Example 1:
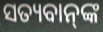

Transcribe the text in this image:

ସତ୍ୟବାନ୍‌ଙ୍କ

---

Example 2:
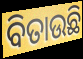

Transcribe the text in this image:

ବିତାଉଛି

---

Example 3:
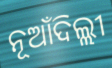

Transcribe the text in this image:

ନୂଆଁଦିଲ୍ଲୀ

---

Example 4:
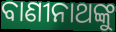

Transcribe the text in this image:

ବାଣୀନାଥଙ୍କୁ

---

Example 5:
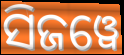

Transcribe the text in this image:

ସିଜୱେ